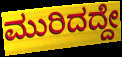
ಮುರಿದದ್ದೇ